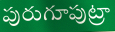
పురుగూపుట్రా